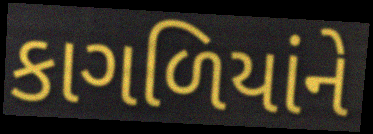
કાગળિયાંને